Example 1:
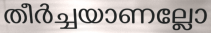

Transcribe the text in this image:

തീർച്ചയാണല്ലോ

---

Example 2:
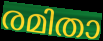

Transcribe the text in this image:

രമിതാ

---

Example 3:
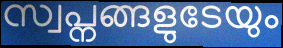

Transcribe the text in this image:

സ്വപ്നങ്ങളുടേയും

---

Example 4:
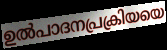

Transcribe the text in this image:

ഉൽപാദനപ്രക്രിയയെ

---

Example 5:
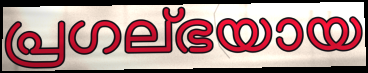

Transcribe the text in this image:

പ്രഗല്ഭയായ